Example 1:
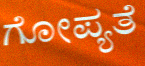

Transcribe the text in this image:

ಗೋಪ್ಯತೆ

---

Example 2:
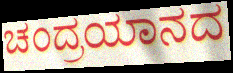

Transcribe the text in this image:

ಚಂದ್ರಯಾನದ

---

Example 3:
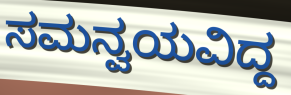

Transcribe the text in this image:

ಸಮನ್ವಯವಿದ್ದ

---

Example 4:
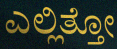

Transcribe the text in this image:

ಎಲ್ಲಿತ್ತೋ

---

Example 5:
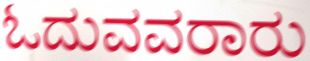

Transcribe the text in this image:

ಓದುವವರಾರು